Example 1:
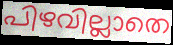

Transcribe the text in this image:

പിഴവില്ലാതെ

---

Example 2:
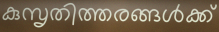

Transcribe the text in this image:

കുസൃതിത്തരങ്ങൾക്ക്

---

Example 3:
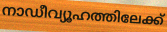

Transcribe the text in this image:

നാഡീവ്യൂഹത്തിലേക്ക്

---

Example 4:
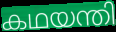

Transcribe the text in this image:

കഥയന്തി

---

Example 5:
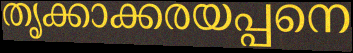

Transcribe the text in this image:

തൃക്കാക്കരയപ്പനെ